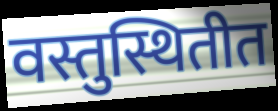
वस्तुस्थितीत